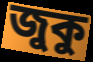
জুকু